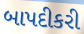
બાપદીકરી